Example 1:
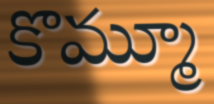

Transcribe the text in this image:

కొమ్మూ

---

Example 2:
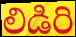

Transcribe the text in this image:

లిడిరి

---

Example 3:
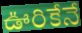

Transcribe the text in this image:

ఊరికేనే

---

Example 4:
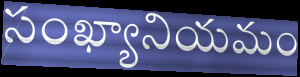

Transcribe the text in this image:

సంఖ్యానియమం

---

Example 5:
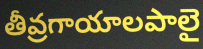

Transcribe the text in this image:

తీవ్రగాయాలపాలై